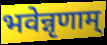
भवेन्नृणाम्